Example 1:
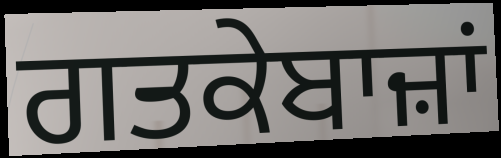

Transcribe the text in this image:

ਗਤਕੇਬਾਜ਼ਾਂ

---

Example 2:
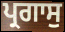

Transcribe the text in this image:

ਪ੍ਰਗਾਸੁ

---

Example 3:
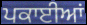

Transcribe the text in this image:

ਪਕਾਈਆਂ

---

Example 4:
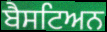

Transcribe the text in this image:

ਬੈਸਟਿਅਨ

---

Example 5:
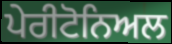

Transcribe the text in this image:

ਪੇਰੀਟੋਨਿਅਲ